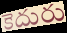
కెదురు